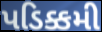
પડિક્કમી